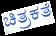
ಚಿತ್ರಕತೆ